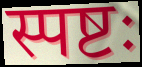
स्पष्टः